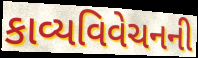
કાવ્યવિવેચનની